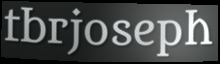
tbrjoseph